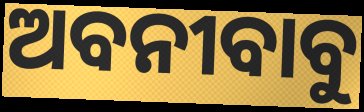
ଅବନୀବାବୁ